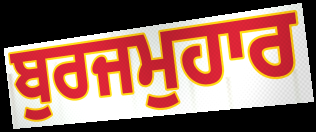
ਬੁਰਜਮੁਹਾਰ